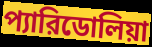
প্যারিডোলিয়া